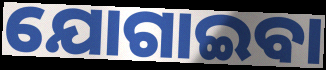
ଯୋଗାଇବା